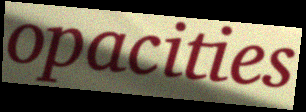
opacities